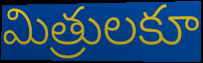
మిత్రులకూ